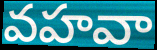
వహవా